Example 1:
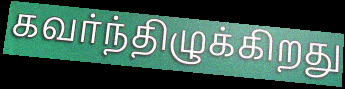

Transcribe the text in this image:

கவர்ந்திழுக்கிறது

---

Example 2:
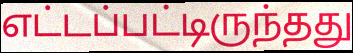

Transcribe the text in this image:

எட்டப்பட்டிருந்தது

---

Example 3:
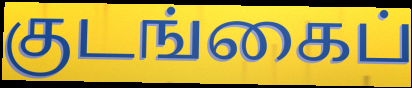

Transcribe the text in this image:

குடங்கைப்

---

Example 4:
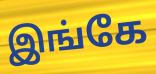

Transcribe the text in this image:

இங்கே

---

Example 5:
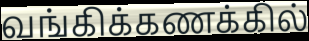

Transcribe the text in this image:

வங்கிக்கணக்கில்